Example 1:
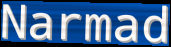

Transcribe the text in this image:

Narmad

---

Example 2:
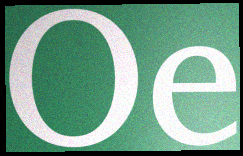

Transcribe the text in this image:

Oe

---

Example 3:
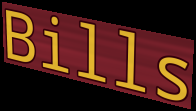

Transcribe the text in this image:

Bills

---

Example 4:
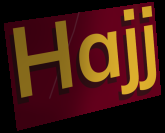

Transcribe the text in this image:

Hajj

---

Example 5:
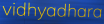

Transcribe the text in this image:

vidhyadhara